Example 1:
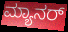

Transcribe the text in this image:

ಮ್ಯಾನರ್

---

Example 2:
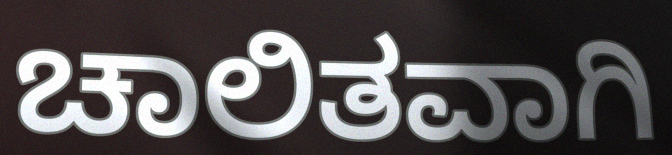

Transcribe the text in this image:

ಚಾಲಿತವಾಗಿ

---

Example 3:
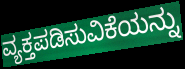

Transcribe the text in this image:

ವ್ಯಕ್ತಪಡಿಸುವಿಕೆಯನ್ನು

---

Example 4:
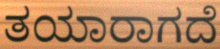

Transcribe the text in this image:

ತಯಾರಾಗದೆ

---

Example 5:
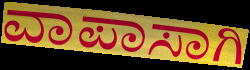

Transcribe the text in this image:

ವಾಪಾಸಾಗಿ